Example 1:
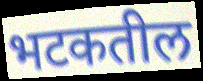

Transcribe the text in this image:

भटकतील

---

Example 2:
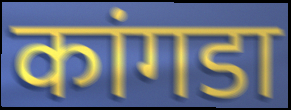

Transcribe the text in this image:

कांगडा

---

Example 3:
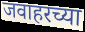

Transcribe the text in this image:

जवाहरच्या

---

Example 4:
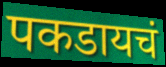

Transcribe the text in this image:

पकडायचं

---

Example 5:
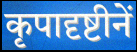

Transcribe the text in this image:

कृपादृष्टीनें